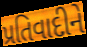
પ્રતિવાદીને